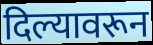
दिल्यावरून